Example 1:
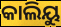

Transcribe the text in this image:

କାଲିୟୁ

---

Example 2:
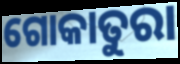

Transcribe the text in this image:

ଗୋକାତୁରା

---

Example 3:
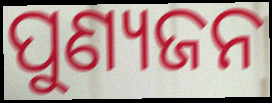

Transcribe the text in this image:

ପୁଣ୍ୟଜନ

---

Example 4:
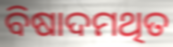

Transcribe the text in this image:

ବିଷାଦମଥିତ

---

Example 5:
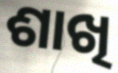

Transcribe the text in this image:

ଶାଖି